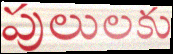
పులులకు